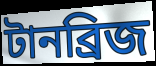
টানব্রিজ